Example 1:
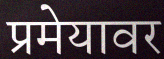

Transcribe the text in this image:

प्रमेयावर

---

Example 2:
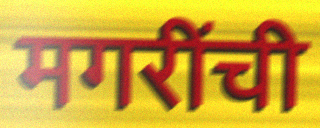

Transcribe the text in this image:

मगरींची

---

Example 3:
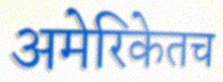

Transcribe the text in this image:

अमेरिकेतच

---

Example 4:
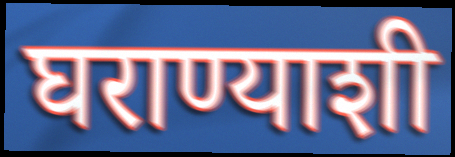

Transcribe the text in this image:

घराण्याशी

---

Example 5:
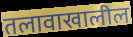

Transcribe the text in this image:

तलावाखालील